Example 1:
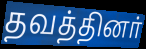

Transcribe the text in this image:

தவத்தினர்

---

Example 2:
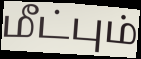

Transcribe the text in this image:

மீட்பும்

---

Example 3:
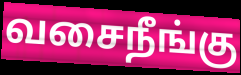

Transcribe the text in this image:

வசைநீங்கு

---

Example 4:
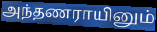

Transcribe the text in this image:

அந்தணராயினும்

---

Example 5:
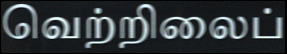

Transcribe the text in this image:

வெற்றிலைப்